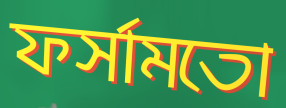
ফর্সামতো